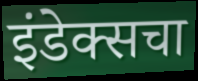
इंडेक्सचा